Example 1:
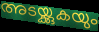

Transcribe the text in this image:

അടയ്ക്കുകയും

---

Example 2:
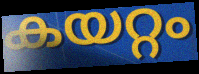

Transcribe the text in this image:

കയറ്റം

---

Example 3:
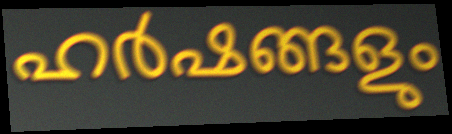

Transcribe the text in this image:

ഹർഷങ്ങളും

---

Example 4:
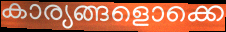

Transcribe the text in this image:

കാര്യങ്ങളൊക്കെ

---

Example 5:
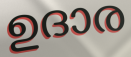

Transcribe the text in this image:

ഉദാര